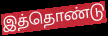
இத்தொண்டு